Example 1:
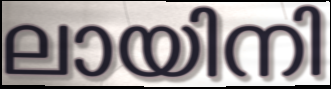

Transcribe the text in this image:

ലായിനി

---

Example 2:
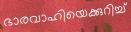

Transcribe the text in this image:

ഭാരവാഹിയെക്കുറിച്ച്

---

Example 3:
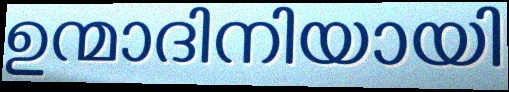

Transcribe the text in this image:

ഉന്മാദിനിയായി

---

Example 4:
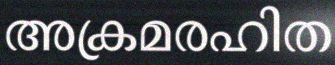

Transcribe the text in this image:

അക്രമരഹിത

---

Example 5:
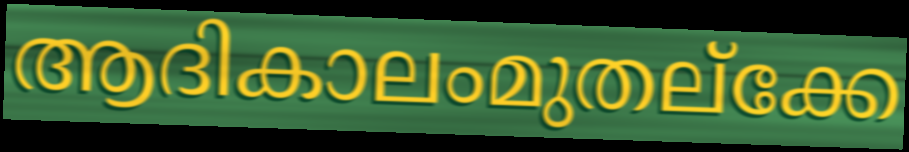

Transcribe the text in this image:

ആദികാലംമുതല്ക്കേ